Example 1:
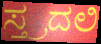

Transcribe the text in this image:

ಸ್ತ್ರದಲಿ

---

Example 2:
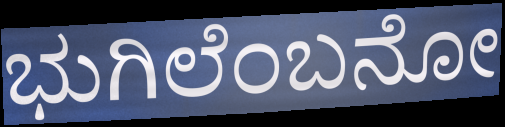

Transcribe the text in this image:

ಭುಗಿಲೆಂಬನೋ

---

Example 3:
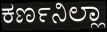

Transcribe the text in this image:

ಕರ್ಣನಿಲ್ಲಾ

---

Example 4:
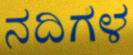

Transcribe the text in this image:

ನದಿಗಳ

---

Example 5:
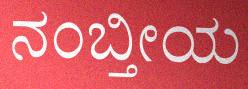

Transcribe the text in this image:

ನಂಬ್ತೀಯ